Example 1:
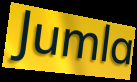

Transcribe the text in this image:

Jumla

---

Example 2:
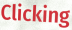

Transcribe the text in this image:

Clicking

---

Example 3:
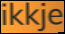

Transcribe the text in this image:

ikkje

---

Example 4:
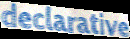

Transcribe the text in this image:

declarative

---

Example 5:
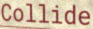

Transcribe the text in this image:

Collide